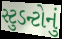
સ્ટુડન્ટોનું